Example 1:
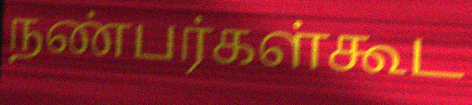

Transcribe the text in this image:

நண்பர்கள்கூட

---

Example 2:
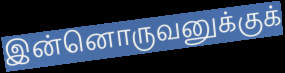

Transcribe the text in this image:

இன்னொருவனுக்குக்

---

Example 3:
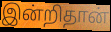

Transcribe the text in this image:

இன்றிதான்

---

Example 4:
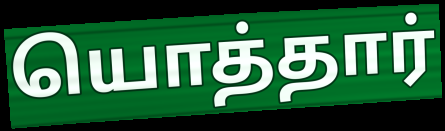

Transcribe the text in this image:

யொத்தார்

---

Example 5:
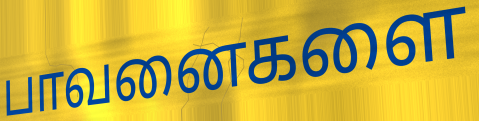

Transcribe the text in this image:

பாவனைகளை